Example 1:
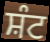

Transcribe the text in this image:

ਸ਼ੰਟ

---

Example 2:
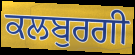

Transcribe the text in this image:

ਕਲਬੁਰਗੀ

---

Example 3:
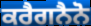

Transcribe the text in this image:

ਕਰੈਗਨੈਨੋ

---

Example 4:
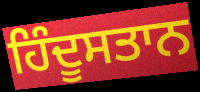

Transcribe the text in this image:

ਹਿੰਦੂਸਤਾਨ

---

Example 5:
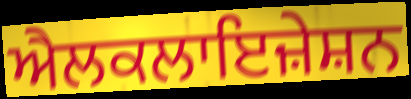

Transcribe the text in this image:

ਐਲਕਲਾਇਜ਼ੇਸ਼ਨ